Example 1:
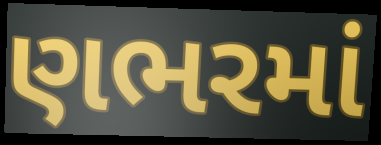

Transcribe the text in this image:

ણભરમાં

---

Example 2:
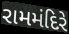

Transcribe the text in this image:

રામમંદિરે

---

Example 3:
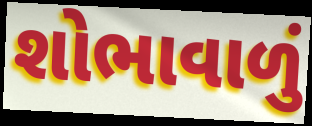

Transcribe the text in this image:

શોભાવાળું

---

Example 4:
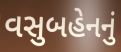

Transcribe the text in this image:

વસુબહેનનું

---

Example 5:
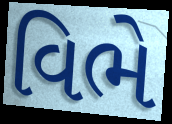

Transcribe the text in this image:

વિભે